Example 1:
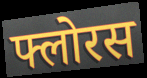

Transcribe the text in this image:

फ्लोरस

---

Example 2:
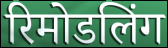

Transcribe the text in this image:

रिमोडलिंग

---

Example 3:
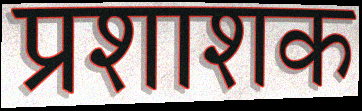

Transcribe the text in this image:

प्रशाशक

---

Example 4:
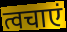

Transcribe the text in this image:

त्वचाएं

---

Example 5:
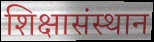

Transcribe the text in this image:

शिक्षासंस्थान